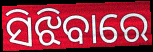
ସିଝିବାରେ